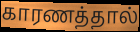
காரணத்தால்